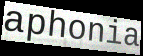
aphonia